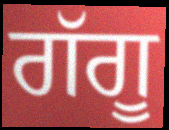
ਗੱਗੂ